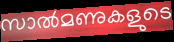
സാൽമണുകളുടെ